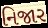
નિજાર